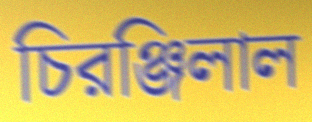
চিরঞ্জিলাল